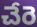
చేరె